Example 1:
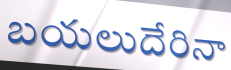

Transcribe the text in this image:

బయలుదేరినా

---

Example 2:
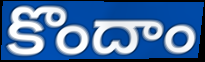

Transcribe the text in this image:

కొందాం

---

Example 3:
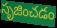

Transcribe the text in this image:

సృజించడం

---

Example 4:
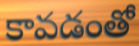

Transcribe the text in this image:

కావడంతో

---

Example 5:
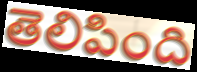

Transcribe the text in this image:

తెలిపింది